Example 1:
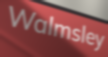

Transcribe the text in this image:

Walmsley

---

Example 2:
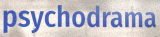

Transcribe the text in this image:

psychodrama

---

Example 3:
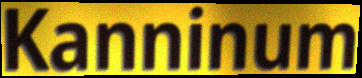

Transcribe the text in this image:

Kanninum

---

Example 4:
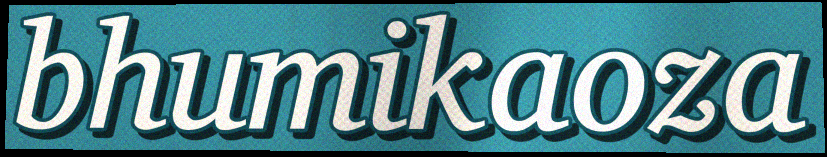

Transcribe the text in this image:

bhumikaoza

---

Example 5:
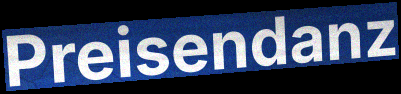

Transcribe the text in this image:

Preisendanz